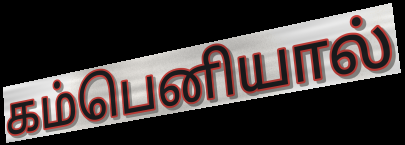
கம்பெனியால்